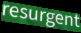
resurgent